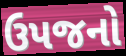
ઉપજનો